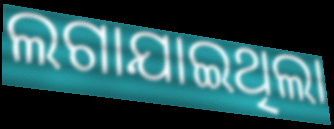
ଲଗାଯାଇଥିଲା